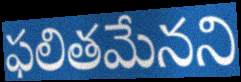
ఫలితమేనని